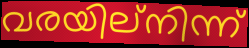
വരയില്നിന്ന്